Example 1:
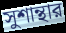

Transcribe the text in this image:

সুশান্থার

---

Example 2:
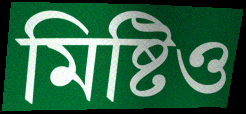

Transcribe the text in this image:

মিষ্টিও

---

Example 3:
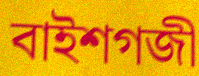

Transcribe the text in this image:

বাইশগজী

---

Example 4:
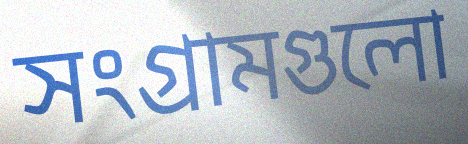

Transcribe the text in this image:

সংগ্রামগুলো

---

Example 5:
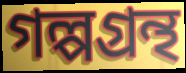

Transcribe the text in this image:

গল্পগ্রন্থ